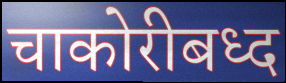
चाकोरीबध्द